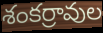
శంకర్రావుల